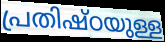
പ്രതിഷ്ഠയുള്ള